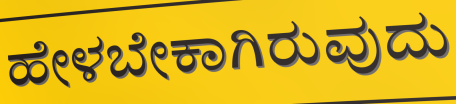
ಹೇಳಬೇಕಾಗಿರುವುದು